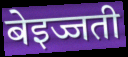
बेइज्जती